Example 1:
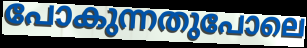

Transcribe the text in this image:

പോകുന്നതുപോലെ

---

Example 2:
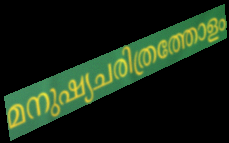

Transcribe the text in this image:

മനുഷ്യചരിത്രത്തോളം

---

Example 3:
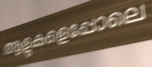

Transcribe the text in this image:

ആളുകളെപ്പോലെ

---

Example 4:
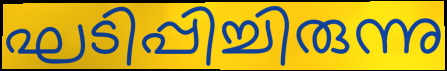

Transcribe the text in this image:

ഘടിപ്പിച്ചിരുന്നു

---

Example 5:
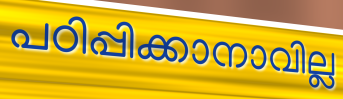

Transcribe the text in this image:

പഠിപ്പിക്കാനാവില്ല